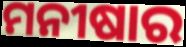
ମନୀଷାର